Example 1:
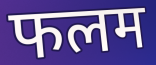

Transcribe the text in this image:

फलम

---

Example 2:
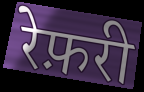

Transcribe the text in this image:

रेफ़री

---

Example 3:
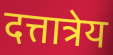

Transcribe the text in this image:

दत्तात्रेय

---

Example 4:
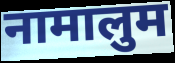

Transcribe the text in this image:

नामालुम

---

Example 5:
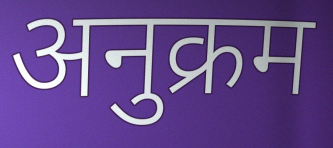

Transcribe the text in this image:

अनुक्रम